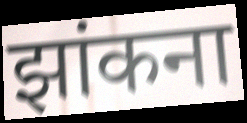
झांकना